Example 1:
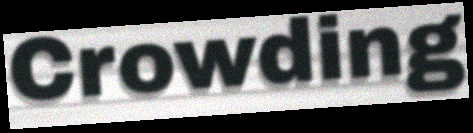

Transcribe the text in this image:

Crowding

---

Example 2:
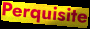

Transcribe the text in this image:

Perquisite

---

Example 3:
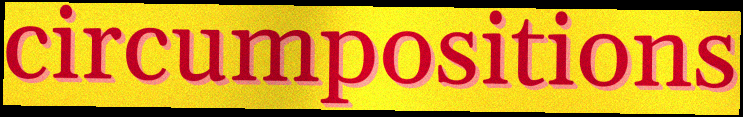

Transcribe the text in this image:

circumpositions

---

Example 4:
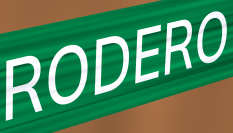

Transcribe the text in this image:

RODERO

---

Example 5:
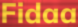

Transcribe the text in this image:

Fidaa